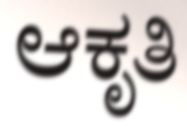
ಆಕೃತಿ